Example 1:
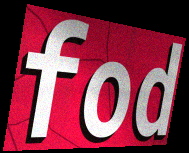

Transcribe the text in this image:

fod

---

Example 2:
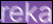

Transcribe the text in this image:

reka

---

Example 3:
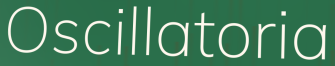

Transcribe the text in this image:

Oscillatoria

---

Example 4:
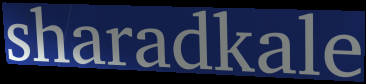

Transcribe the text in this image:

sharadkale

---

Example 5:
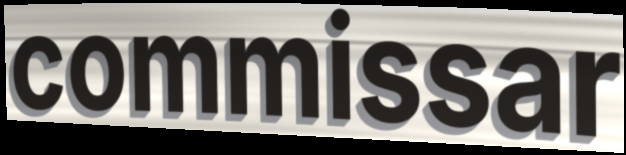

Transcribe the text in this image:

commissar